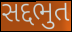
સદ્દભુત